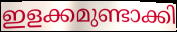
ഇളക്കമുണ്ടാക്കി